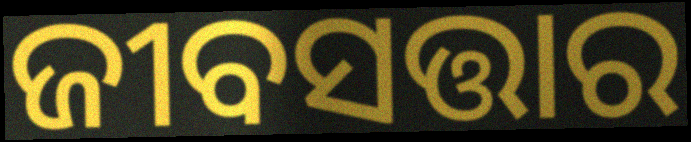
ଜୀବସତ୍ତାର